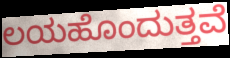
ಲಯಹೊಂದುತ್ತವೆ